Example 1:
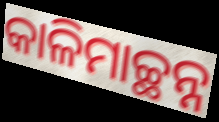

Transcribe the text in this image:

କାଳିମାଚ୍ଛନ୍ନ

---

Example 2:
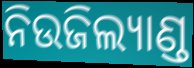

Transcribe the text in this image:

ନିଉଜିଲ୍ୟାଣ୍ଡ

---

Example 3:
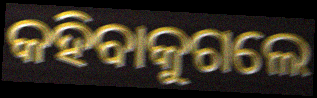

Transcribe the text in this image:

କହିବାକୁଗଲେ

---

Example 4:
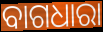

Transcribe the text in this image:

ବାଗଧାରା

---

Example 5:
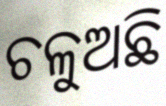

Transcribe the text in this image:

ଚଳୁଅଛି